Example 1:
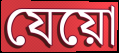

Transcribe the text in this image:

যেয়ো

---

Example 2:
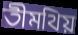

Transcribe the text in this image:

তীমথিয়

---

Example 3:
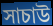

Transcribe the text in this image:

সাচাউ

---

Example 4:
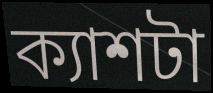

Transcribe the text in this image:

ক্যাশটা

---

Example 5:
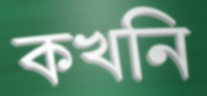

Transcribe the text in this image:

কখনি